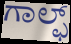
ಗಾಲ್ಫ್